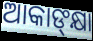
ଆକାଙ୍କ୍ଷା